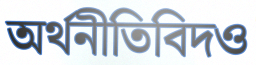
অর্থনীতিবিদও